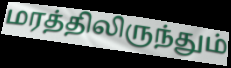
மரத்திலிருந்தும்